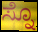
ಸ್ನೊ